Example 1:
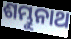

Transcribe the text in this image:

ଶମ୍ଭୁନାଥ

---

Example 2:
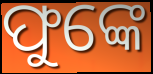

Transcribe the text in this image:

ଫୁଙ୍କେ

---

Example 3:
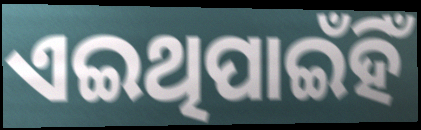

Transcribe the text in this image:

ଏଇଥିପାଇଁହିଁ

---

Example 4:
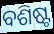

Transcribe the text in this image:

ବଶିଷ୍ଟ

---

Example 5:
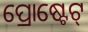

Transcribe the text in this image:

ପ୍ରୋଷ୍ଟେଟ୍